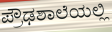
ಪ್ರೌಢಶಾಲೆಯಲ್ಲಿ